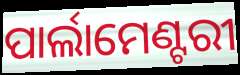
ପାର୍ଲାମେଣ୍ଟରୀ